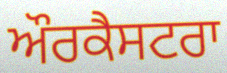
ਔਰਕੈਸਟਰਾ